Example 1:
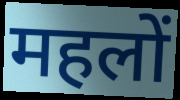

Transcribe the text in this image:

महलों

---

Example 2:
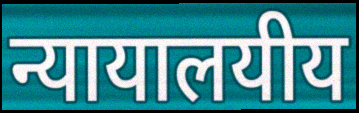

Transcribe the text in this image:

न्यायालयीय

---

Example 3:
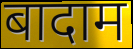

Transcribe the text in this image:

बादाम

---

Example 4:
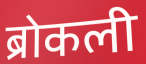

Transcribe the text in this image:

ब्रोकली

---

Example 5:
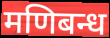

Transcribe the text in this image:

मणिबन्ध